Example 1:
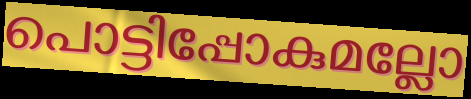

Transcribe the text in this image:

പൊട്ടിപ്പോകുമല്ലോ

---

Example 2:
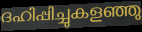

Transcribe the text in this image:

ദഹിപ്പിച്ചുകളഞ്ഞു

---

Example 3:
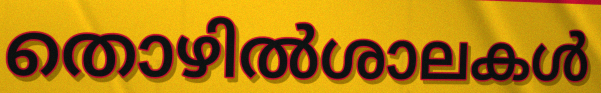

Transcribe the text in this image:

തൊഴിൽശാലകൾ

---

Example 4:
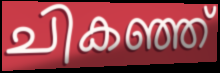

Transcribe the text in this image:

ചികഞ്ഞ്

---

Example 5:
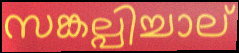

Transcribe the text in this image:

സങ്കല്പിച്ചാല്